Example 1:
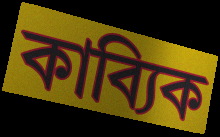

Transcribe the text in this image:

কাব্যিক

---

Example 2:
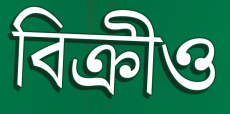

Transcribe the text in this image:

বিক্ৰীও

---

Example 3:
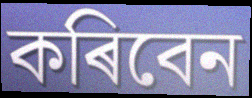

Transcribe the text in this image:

কৰিবেন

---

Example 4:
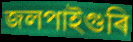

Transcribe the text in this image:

জলপাইগুৰি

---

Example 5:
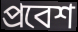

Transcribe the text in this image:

প্ৰবেশ